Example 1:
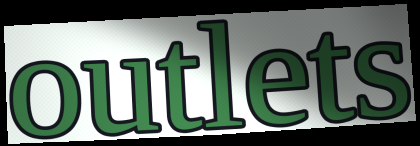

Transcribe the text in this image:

outlets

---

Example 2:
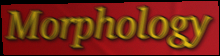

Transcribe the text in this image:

Morphology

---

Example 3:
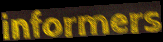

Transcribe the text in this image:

informers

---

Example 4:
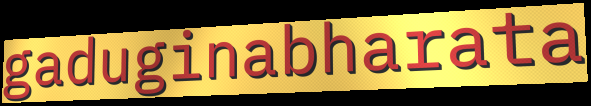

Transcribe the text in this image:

gaduginabharata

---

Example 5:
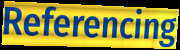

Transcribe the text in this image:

Referencing